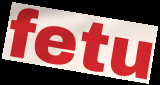
fetu